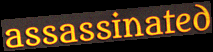
assassinated